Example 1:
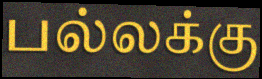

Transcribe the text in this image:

பல்லக்கு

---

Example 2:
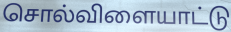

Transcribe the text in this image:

சொல்விளையாட்டு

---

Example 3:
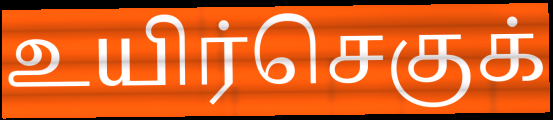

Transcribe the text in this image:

உயிர்செகுக்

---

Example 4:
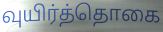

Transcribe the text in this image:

வுயிர்த்தொகை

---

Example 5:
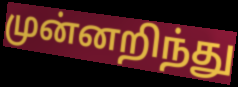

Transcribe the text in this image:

முன்னறிந்து